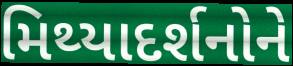
મિથ્યાદર્શનોને